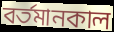
বর্তমানকাল